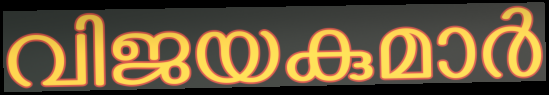
വിജയകുമാർ